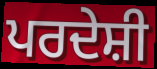
ਪਰਦੇਸ਼ੀ